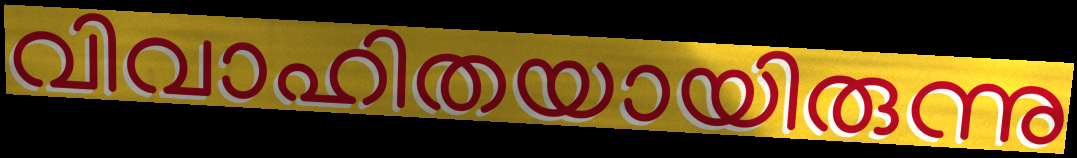
വിവാഹിതയായിരുന്നു